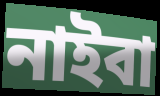
নাইবা